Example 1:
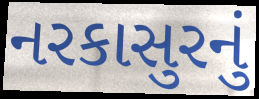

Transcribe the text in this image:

નરકાસુરનું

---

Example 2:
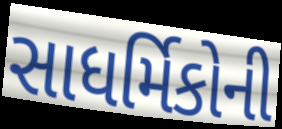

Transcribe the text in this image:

સાધર્મિકોની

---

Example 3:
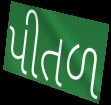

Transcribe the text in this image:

પીતળ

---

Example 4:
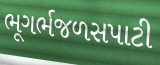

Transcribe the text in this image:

ભૂગર્ભજળસપાટી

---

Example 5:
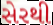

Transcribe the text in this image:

સેરથી